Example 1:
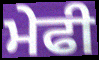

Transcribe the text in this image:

ਮੇਫੀ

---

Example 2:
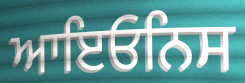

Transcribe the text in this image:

ਆਇਓਨਿਸ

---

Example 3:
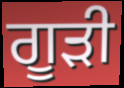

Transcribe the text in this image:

ਗੂੜੀ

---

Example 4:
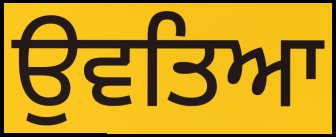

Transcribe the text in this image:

ਉਵਤਿਆ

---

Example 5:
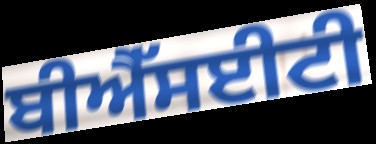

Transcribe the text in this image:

ਬੀਐੱਸਈਟੀ